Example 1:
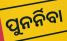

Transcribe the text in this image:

ପୁନର୍ନିବା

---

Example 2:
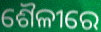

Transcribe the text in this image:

ଶୈଳୀରେ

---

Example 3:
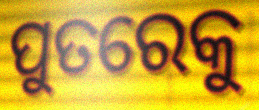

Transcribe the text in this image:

ପୁତରେକୁ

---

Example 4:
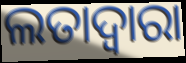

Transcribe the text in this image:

ଲତାଦ୍ୱାରା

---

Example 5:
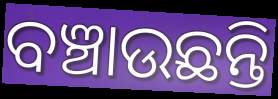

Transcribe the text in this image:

ବଞ୍ଚାଉଛନ୍ତି